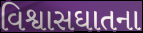
વિશ્વાસઘાતના